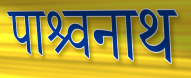
पाश्र्वनाथ